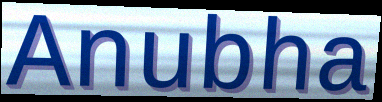
Anubha